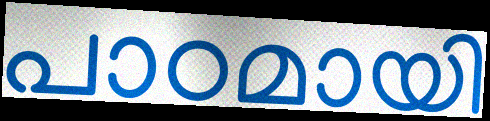
പാഠമായി